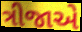
ત્રીજાએ